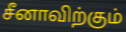
சீனாவிற்கும்